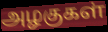
அழகுகள்